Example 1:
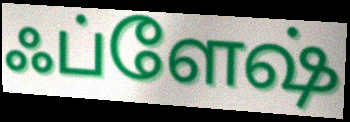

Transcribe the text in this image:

ஃப்ளேஷ்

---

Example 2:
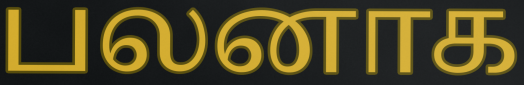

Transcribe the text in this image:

பலனாக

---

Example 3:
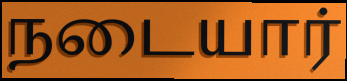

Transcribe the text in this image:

நடையார்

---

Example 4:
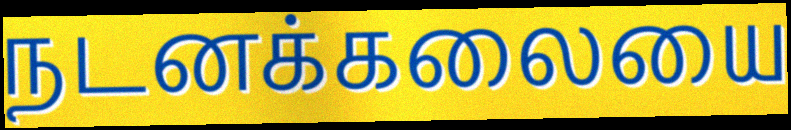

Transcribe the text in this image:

நடனக்கலையை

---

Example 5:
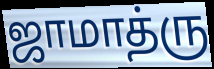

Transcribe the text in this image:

ஜாமாத்ரு